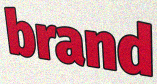
brand